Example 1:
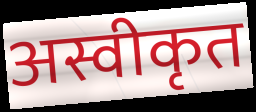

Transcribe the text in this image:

अस्वीकृत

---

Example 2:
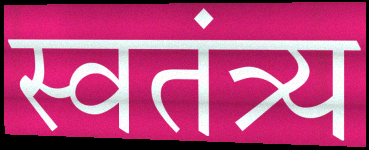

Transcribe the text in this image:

स्वतंत्र्य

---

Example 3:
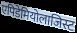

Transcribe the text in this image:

एपिडेमियोलाजिस्ट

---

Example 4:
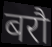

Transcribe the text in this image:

बरौ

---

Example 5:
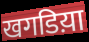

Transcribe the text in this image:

खगडिय़ा